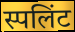
स्पलिंट